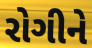
રોગીને